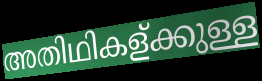
അതിഥികള്ക്കുള്ള